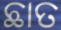
ଛାତ